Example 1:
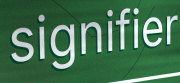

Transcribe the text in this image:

signifier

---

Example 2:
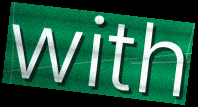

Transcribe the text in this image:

with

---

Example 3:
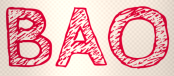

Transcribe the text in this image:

BAO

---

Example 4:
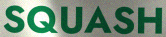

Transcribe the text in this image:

SQUASH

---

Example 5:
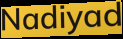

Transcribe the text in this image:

Nadiyad